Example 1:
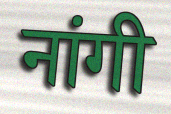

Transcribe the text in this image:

नांगी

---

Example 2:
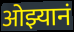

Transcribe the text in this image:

ओझ्यानं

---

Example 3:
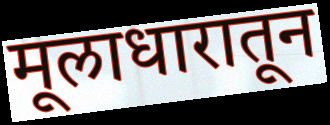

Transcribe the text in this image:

मूलाधारातून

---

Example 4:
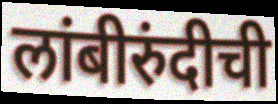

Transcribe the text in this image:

लांबीरुंदीची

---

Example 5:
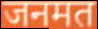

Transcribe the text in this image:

जनमत